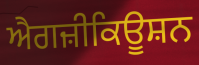
ਐਗਜ਼ੀਕਿਊਸ਼ਨ